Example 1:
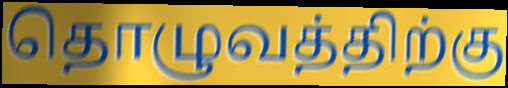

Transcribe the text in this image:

தொழுவத்திற்கு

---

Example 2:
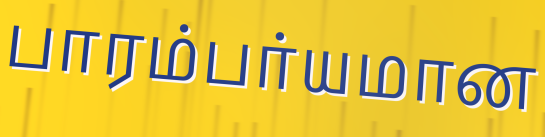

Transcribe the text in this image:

பாரம்பர்யமான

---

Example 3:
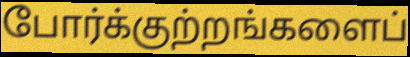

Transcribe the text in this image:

போர்க்குற்றங்களைப்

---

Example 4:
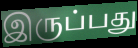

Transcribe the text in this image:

இருப்பது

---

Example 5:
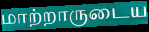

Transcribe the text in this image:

மாற்றாருடைய